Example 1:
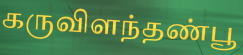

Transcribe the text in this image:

கருவிளந்தண்பூ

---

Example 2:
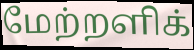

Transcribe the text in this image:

மேற்றளிக்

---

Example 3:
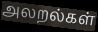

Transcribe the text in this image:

அலறல்கள்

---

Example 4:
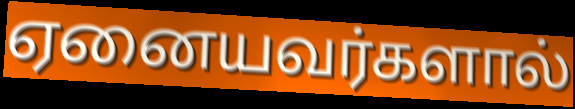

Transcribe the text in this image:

ஏனையவர்களால்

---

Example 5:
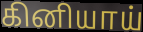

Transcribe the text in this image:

கினியாய்